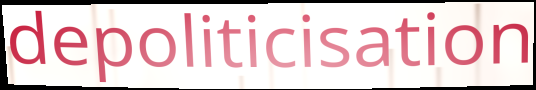
depoliticisation